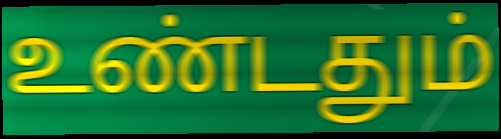
உண்டதும்